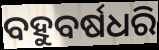
ବହୁବର୍ଷଧରି